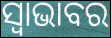
ସ୍ୱାଭାବର